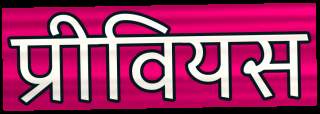
प्रीवियस